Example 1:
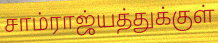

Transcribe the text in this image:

சாம்ராஜ்யத்துக்குள்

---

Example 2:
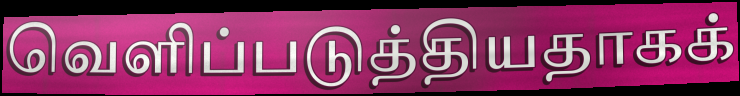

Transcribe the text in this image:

வெளிப்படுத்தியதாகக்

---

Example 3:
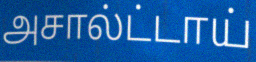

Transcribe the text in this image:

அசால்ட்டாய்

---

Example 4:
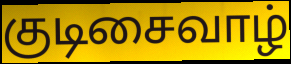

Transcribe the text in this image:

குடிசைவாழ்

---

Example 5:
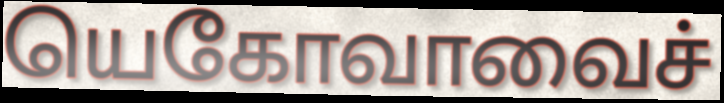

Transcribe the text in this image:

யெகோவாவைச்